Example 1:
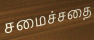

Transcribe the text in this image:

சமைச்சதை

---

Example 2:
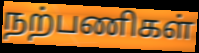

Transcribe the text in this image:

நற்பணிகள்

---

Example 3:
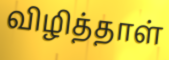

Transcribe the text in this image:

விழித்தாள்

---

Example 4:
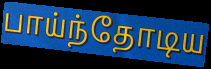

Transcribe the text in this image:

பாய்ந்தோடிய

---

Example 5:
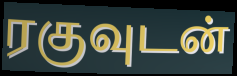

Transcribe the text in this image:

ரகுவுடன்